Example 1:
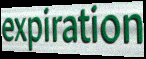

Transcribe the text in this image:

expiration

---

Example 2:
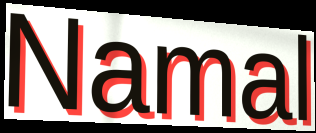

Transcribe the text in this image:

Namal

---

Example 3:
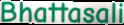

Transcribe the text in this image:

Bhattasali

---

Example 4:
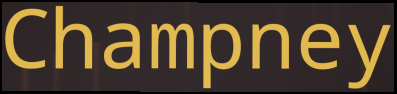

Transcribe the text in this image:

Champney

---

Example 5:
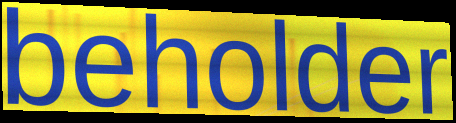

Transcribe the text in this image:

beholder